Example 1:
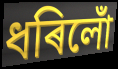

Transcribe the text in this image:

ধৰিলোঁ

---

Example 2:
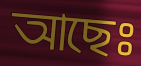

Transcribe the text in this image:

আছেঃ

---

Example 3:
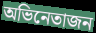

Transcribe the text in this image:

অভিনেতাজন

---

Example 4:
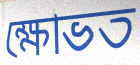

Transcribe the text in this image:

ক্ষোভত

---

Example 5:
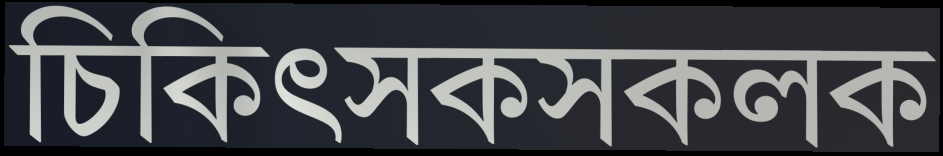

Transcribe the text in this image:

চিকিৎসকসকলক